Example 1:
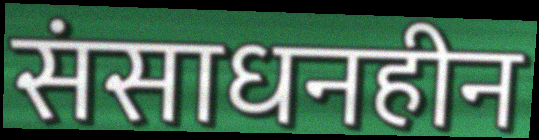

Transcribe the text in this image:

संसाधनहीन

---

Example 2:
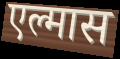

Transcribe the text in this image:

एल्मास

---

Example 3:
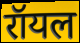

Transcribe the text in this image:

रॉयल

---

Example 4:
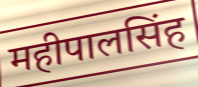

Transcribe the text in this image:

महीपालसिंह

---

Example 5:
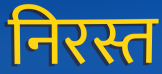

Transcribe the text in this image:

निरस्त